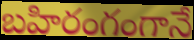
బహిరంగంగానే